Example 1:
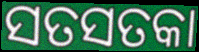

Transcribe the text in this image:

ସତସତକା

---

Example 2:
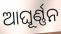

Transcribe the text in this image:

ଆଘୂର୍ଣ୍ଣନ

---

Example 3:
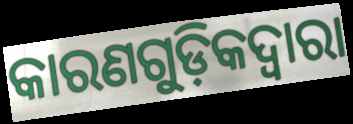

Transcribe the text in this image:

କାରଣଗୁଡ଼ିକଦ୍ବାରା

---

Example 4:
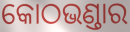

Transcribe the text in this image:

କୋଠଭଣ୍ଡାର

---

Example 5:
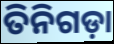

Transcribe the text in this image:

ତିନିଗଡ଼ା